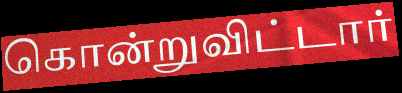
கொன்றுவிட்டார்